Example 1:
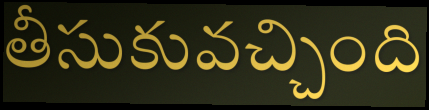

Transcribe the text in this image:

తీసుకువచ్చింది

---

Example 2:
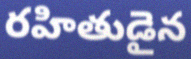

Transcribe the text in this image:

రహితుడైన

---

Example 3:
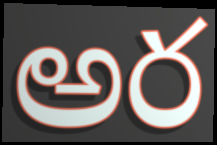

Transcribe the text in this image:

అర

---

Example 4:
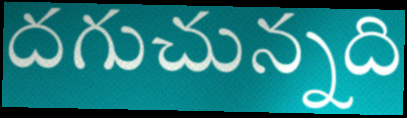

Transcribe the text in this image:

దగుచున్నది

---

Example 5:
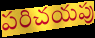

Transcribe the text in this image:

పరిచయపు